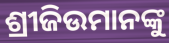
ଶ୍ରୀଜିଉମାନଙ୍କୁ